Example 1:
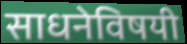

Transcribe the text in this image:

साधनेविषयी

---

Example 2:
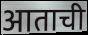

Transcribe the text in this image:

आताची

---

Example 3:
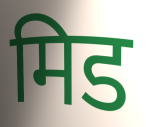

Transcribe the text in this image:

मिड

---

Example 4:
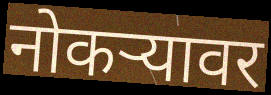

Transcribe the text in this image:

नोकऱ्यावर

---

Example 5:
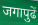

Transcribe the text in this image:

जगापुढें